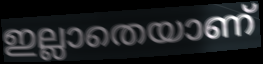
ഇല്ലാതെയാണ്